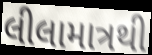
લીલામાત્રથી